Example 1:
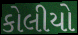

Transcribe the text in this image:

કોલીયો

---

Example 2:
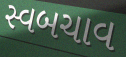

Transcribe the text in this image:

સ્વબચાવ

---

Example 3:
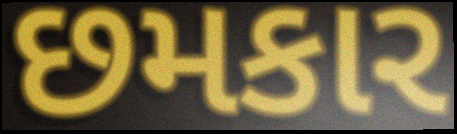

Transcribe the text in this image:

છમકાર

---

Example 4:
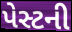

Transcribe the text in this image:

પેસ્ટની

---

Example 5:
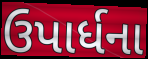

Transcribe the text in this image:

ઉપાર્ધના